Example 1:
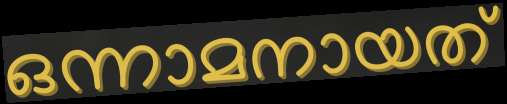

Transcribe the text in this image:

ഒന്നാമനായത്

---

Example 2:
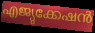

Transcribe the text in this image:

എജ്യുക്കേഷൻ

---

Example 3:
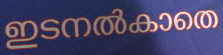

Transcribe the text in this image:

ഇടനൽകാതെ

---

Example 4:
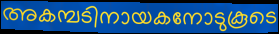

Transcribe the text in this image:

അകമ്പടിനായകനോടുകൂടെ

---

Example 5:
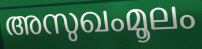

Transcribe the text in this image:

അസുഖംമൂലം